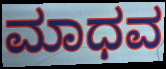
ಮಾಧವ